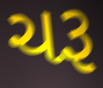
ચરૂ